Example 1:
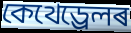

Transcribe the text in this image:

কেথেড্ৰেলৰ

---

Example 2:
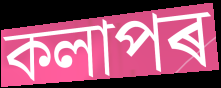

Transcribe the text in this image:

কলাপৰ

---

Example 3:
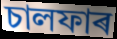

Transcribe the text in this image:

চালফাৰ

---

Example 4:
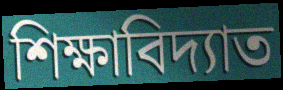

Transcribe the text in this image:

শিক্ষাবিদ্যাত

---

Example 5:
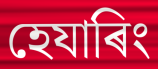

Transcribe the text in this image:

হেযাৰিং